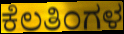
ಕೆಲತಿಂಗಳ